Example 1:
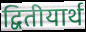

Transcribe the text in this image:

द्वितीयार्थ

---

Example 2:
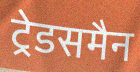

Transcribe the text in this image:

ट्रेडसमैन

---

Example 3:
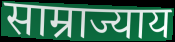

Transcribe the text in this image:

साम्राज्याय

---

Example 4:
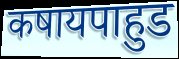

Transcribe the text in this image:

कषायपाहुड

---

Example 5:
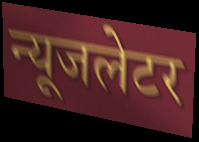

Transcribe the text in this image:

न्यूजलेटर